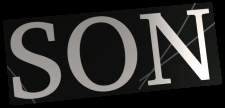
SON